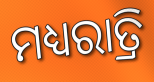
ମଧ୍ଯରାତ୍ରି